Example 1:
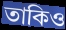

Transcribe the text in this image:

তাকিও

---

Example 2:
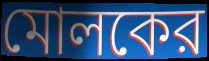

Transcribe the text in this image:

মোলকের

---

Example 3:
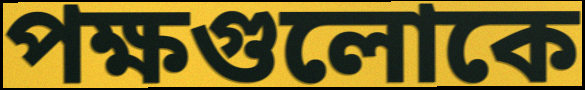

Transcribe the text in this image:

পক্ষগুলোকে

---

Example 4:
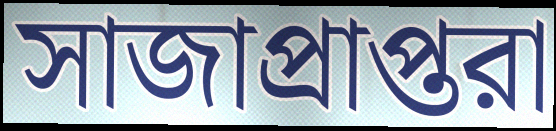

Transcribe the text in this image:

সাজাপ্রাপ্তরা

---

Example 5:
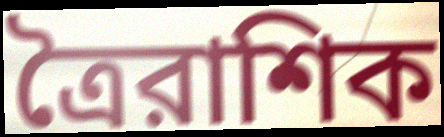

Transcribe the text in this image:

ত্রৈরাশিক